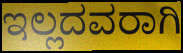
ಇಲ್ಲದವರಾಗಿ